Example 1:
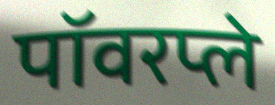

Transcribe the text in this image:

पॉवरप्ले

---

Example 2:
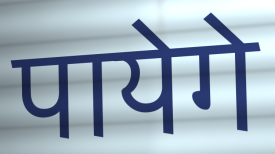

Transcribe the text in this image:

पायेगे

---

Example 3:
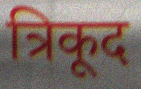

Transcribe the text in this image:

त्रिकूद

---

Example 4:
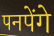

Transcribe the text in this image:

पनपेंगे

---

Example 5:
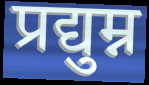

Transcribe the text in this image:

प्रद्युम्न